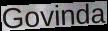
Govinda